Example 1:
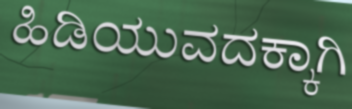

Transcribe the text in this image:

ಹಿಡಿಯುವದಕ್ಕಾಗಿ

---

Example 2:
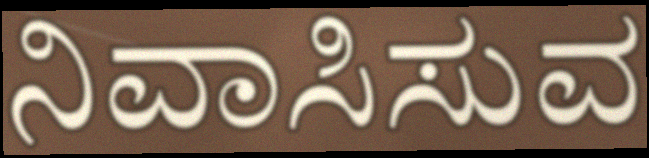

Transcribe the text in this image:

ನಿವಾಸಿಸುವ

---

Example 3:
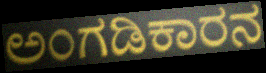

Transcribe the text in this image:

ಅಂಗಡಿಕಾರನ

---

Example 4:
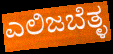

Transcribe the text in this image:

ಎಲಿಜಬೆತ್ಳ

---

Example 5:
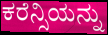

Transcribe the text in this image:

ಕರೆನ್ಸಿಯನ್ನು